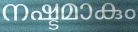
നഷ്ടമാകും